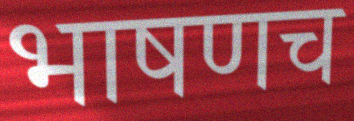
भाषणच